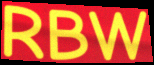
RBW